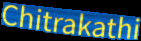
Chitrakathi